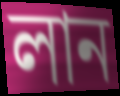
লান